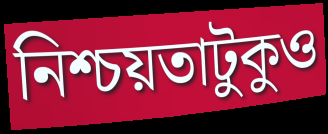
নিশ্চয়তাটুকুও